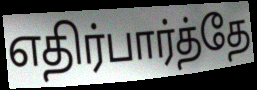
எதிர்பார்த்தே